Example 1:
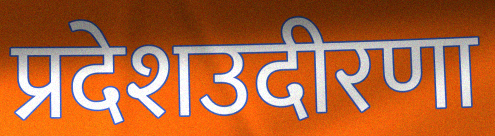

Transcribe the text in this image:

प्रदेशउदीरणा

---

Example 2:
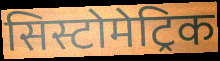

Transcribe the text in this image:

सिस्टोमेट्रिक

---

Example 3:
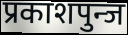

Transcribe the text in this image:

प्रकाशपुन्ज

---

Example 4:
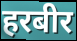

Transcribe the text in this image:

हरबीर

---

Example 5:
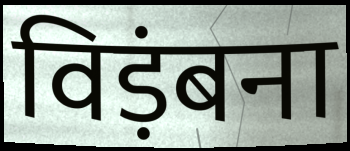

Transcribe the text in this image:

विड़ंबना